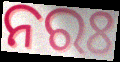
ନରଃ